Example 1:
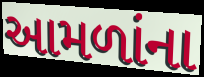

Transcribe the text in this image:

આમળાંના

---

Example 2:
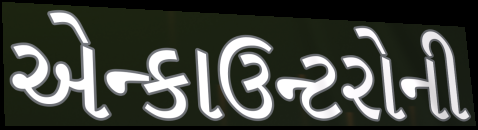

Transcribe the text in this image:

એન્કાઉન્ટરોની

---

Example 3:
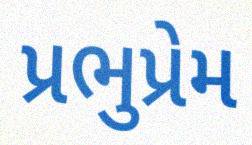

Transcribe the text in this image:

પ્રભુપ્રેમ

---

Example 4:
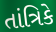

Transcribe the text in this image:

તાંત્રિકે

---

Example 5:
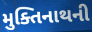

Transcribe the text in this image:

મુક્તિનાથની